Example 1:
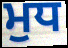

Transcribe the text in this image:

ਮੁਧ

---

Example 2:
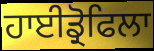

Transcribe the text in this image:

ਹਾਈਡ੍ਰੋਫਿਲਾ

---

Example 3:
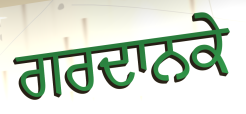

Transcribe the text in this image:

ਗਰਦਾਨਕੇ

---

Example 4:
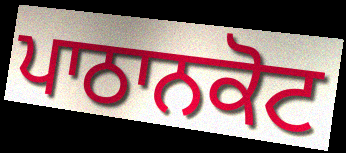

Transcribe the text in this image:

ਪਾਠਾਨਕੋਟ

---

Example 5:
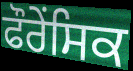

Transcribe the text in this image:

ਫੌਰੇਂਸਿਕ